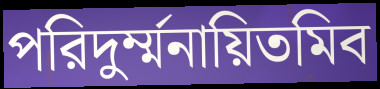
পরিদুর্ম্মনায়িতমিব